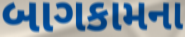
બાગકામના